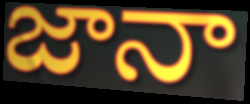
జానా